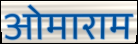
ओमाराम